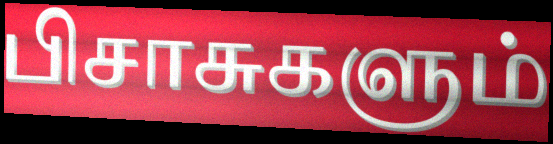
பிசாசுகளும்